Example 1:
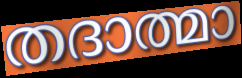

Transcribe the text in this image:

തദാത്മാ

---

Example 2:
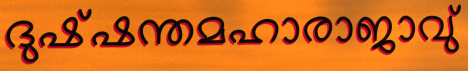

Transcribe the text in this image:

ദുഷ്ഷന്തമഹാരാജാവു്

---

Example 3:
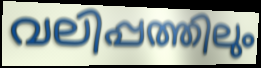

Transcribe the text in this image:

വലിപ്പത്തിലും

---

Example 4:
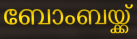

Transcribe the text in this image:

ബോംബയ്ക്ക്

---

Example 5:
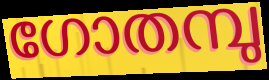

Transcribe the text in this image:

ഗോതമ്പു